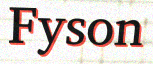
Fyson